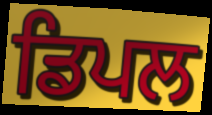
ਡਿਪਲ